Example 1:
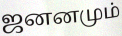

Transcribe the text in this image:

ஜனனமும்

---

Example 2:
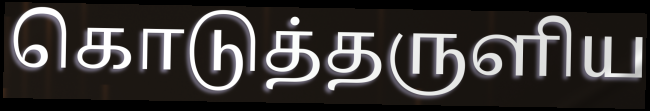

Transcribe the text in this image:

கொடுத்தருளிய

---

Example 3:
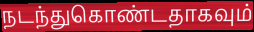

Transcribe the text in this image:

நடந்துகொண்டதாகவும்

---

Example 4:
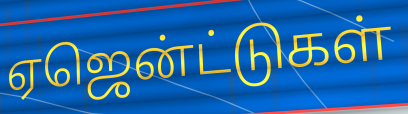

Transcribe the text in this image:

ஏஜென்ட்டுகள்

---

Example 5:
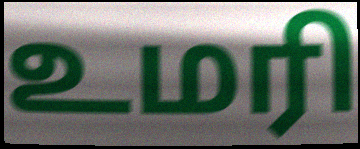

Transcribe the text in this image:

உமரி